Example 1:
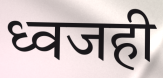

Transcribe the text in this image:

ध्वजही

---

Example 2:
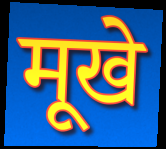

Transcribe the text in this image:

मूखे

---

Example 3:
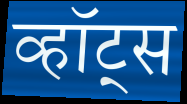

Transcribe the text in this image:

व्हॉट्‌स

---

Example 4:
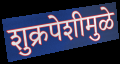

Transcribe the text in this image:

शुक्रपेशीमुळे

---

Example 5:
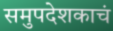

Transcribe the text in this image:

समुपदेशकाचं